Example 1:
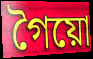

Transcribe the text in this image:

গৈয়ো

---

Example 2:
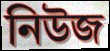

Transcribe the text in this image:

নিউজ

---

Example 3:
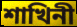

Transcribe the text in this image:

শাখিনী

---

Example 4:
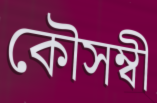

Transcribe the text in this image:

কৌসম্বী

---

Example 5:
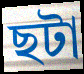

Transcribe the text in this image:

ছটা